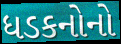
ધડકનોનો